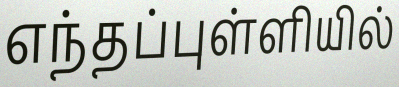
எந்தப்புள்ளியில்